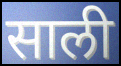
साली